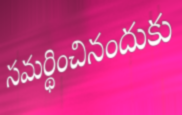
సమర్థించినందుకు